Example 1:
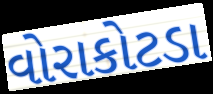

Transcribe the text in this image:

વોરાકોટડા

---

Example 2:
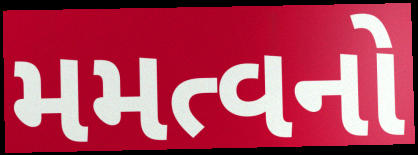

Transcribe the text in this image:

મમત્વનો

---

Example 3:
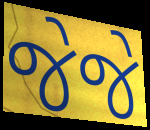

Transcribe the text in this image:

જેજે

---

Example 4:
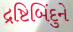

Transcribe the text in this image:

દ્રષ્ટિબિંદુને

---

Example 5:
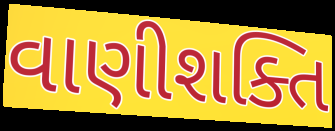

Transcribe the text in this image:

વાણીશક્તિ